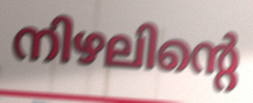
നിഴലിന്റെ